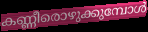
കണ്ണീരൊഴുക്കുമ്പോൾ